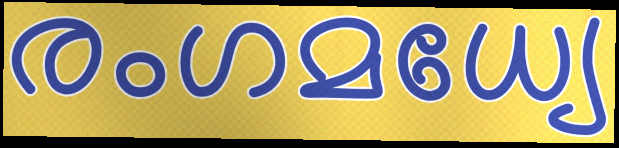
രംഗമധ്യേ